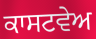
ਕਾਸਟਵੇਅ